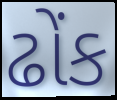
ઢોંક